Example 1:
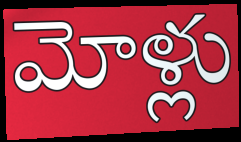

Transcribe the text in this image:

మోళ్లు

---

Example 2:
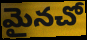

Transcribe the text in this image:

మైనచో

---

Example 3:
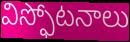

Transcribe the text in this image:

విస్ఫోటనాలు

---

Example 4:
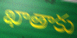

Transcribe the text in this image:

ఖాతాకు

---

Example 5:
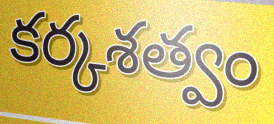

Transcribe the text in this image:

కర్కశత్వం